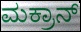
ಮಕ್ರಾನ್